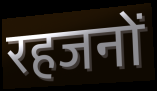
रहजनों